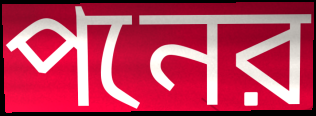
পনের